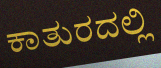
ಕಾತುರದಲ್ಲಿ